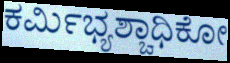
ಕರ್ಮಿಭ್ಯಶ್ಚಾಧಿಕೋ